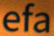
efa